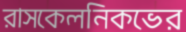
রাসকেলনিকভের